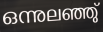
ഒന്നുലഞ്ഞു്